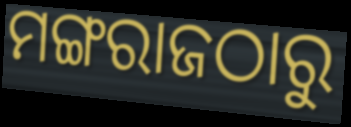
ମଙ୍ଗରାଜଠାରୁ